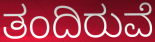
ತಂದಿರುವೆ